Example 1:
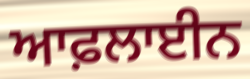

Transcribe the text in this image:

ਆਫ਼ਲਾਈਨ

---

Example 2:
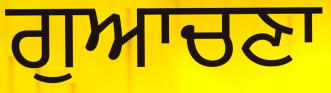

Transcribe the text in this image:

ਗੁਆਚਣਾ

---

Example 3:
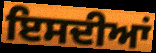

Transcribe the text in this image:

ਇਸਦੀਆਂ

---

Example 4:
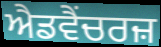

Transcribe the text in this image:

ਐਡਵੈਂਚਰਜ਼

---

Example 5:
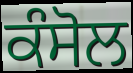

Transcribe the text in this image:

ਕੰਸੋਲ